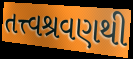
તત્ત્વશ્રવણથી